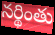
నర్థింతు